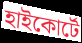
হাইকোর্টে